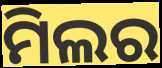
ମିଲର